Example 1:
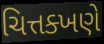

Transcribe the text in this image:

ચિત્તક્ખણે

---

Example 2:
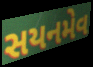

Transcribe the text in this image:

સયનમેવ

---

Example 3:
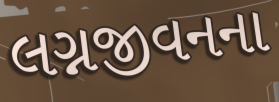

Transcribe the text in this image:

લગ્નજીવનના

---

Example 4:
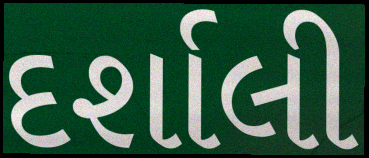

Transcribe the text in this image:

દર્શાલી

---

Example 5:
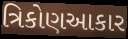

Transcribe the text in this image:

ત્રિકોણઆકાર